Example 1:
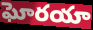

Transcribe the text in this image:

ఘోరయా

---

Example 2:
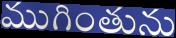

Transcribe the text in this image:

ముగింతును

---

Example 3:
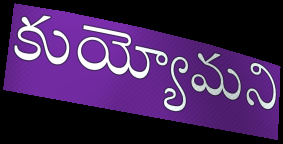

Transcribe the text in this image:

కుయ్యోమని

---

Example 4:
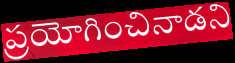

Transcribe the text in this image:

ప్రయోగించినాడని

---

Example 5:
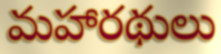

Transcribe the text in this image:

మహారథులు